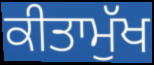
ਕੀਤਾਮੁੱਖ